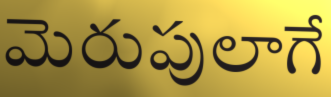
మెరుపులాగే